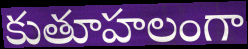
కుతూహలంగా